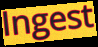
Ingest